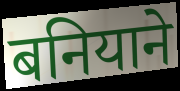
बनियाने